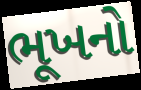
ભૂખનો